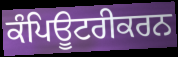
ਕੰਪਿਊਟਰੀਕਰਨ